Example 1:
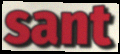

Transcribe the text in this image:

sant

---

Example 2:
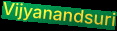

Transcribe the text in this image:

Vijyanandsuri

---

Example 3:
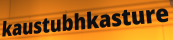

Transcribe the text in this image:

kaustubhkasture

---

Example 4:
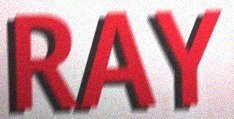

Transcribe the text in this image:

RAY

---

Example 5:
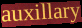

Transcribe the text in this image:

auxillary